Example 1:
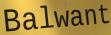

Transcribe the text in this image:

Balwant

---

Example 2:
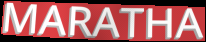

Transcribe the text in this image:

MARATHA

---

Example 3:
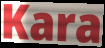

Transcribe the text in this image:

Kara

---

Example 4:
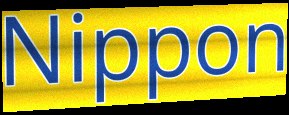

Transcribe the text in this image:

Nippon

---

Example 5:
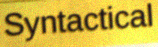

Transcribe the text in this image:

Syntactical